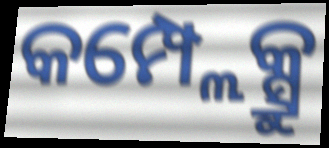
କମ୍ପ୍ଲେକ୍ସ୍ରୁ